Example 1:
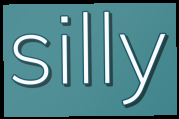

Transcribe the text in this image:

silly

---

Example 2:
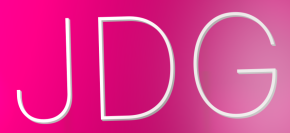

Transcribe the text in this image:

JDG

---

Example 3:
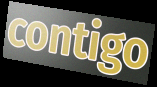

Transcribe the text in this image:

contigo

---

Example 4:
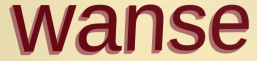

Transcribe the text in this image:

wanse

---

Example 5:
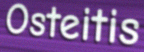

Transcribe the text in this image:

Osteitis